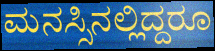
ಮನಸ್ಸಿನಲ್ಲಿದ್ದರೂ